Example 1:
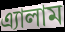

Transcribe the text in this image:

এ্যালাম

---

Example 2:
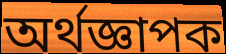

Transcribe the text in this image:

অর্থজ্ঞাপক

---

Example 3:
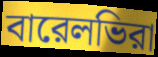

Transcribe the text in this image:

বারেলভিরা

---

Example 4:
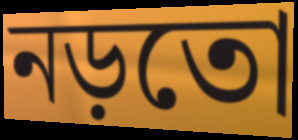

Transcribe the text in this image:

নড়তো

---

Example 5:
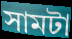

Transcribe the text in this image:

সামটা